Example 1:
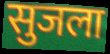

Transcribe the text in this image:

सुजला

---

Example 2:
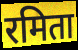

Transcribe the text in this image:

रमिता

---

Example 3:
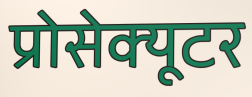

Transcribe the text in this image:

प्रोसेक्यूटर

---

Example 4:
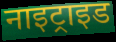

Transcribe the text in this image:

नाइट्राइड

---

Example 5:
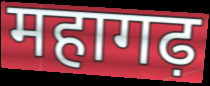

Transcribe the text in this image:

महागढ़